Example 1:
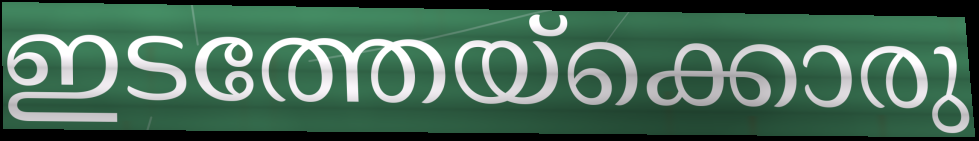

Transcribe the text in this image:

ഇടത്തേയ്ക്കൊരു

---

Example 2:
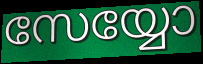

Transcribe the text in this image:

സേയ്യോ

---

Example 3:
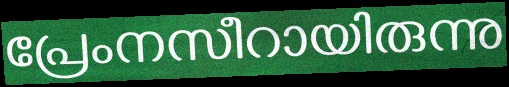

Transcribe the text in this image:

പ്രേംനസീറായിരുന്നു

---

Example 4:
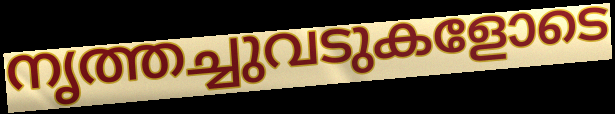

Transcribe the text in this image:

നൃത്തച്ചുവടുകളോടെ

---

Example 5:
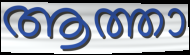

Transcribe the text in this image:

ആത്താ